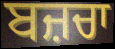
ਬਜ਼ਚਾ